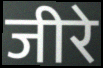
जीरे